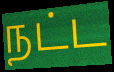
நட்ட